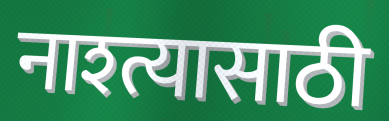
नाश्त्यासाठी